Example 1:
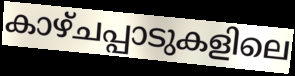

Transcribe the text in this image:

കാഴ്ചപ്പാടുകളിലെ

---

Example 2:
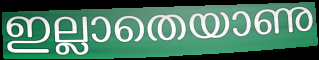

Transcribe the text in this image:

ഇല്ലാതെയാണു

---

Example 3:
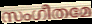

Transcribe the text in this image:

സംഗീതമേ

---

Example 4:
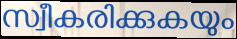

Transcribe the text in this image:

സ്വീകരിക്കുകയും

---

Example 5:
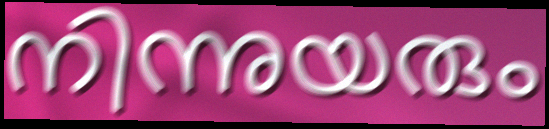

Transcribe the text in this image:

നിന്നുയരും